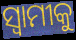
ସ୍ବାମୀକୁ